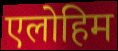
एलोहिम